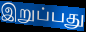
இறுப்பது